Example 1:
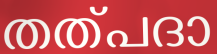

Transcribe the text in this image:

തത്പദാ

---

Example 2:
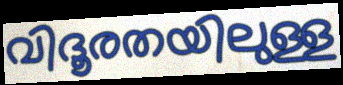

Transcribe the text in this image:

വിദൂരതയിലുള്ള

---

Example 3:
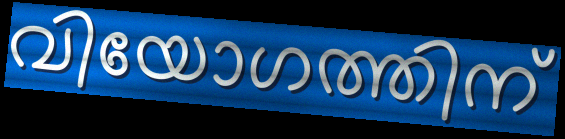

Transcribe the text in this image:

വിയോഗത്തിന്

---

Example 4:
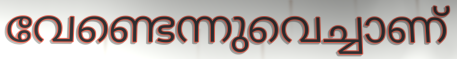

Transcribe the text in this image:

വേണ്ടെന്നുവെച്ചാണ്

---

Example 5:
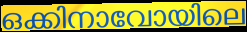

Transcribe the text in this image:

ഒക്കിനാവോയിലെ